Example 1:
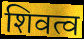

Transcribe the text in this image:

शिवत्व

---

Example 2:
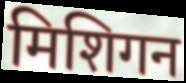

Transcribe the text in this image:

मिशिगन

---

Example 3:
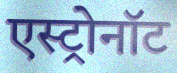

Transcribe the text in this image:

एस्‍ट्रोनॉट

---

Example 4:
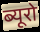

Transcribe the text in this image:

ब्यूरो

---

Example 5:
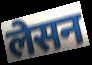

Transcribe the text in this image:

लेसन